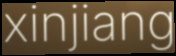
xinjiang